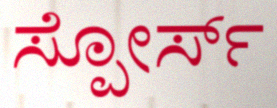
ಸ್ಪೋರ್ಸ್